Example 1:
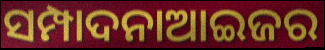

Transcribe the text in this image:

ସମ୍ପାଦନାଆଇଜର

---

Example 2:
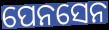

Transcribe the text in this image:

ପେନସେନ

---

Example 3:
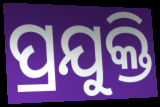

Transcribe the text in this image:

ପ୍ରଯୁକ୍ତି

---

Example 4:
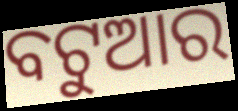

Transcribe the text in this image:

ବଟୁଆର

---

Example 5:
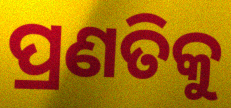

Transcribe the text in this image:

ପ୍ରଣତିକୁ